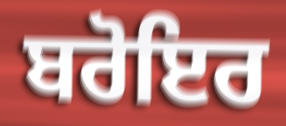
ਬਰੋਇਰ